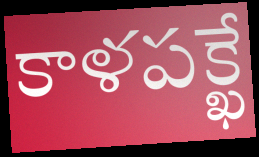
కాళపక్ఖే